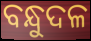
ବନ୍ଧୁଦଳ